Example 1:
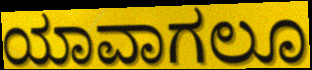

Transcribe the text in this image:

ಯಾವಾಗಲೂ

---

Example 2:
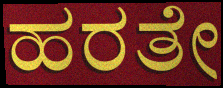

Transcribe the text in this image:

ಹರತೇ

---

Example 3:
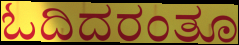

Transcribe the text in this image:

ಓದಿದರಂತೂ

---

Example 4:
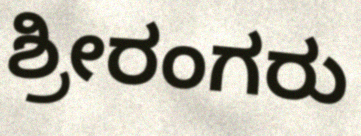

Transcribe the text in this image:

ಶ್ರೀರಂಗರು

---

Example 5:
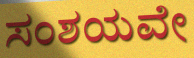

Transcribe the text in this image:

ಸಂಶಯವೇ